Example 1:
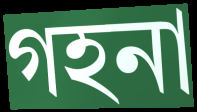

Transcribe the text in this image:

গহনা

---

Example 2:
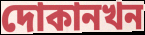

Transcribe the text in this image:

দোকানখন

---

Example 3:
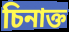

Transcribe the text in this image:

চিনাক্ত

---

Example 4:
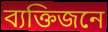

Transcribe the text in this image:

ব্যক্তিজনে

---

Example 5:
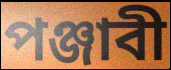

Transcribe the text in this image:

পঞ্জাবী